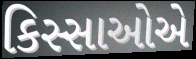
કિસ્સાઓએ